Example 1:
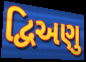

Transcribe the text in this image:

દ્વિઅણુ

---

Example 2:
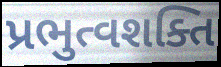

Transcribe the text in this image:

પ્રભુત્વશક્તિ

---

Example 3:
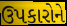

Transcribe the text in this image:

ઉપકારોને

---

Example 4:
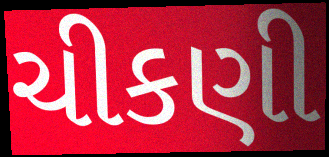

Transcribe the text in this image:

ચીકણી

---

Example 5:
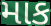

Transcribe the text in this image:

માક